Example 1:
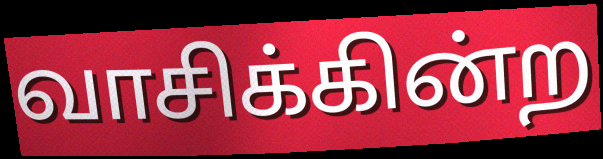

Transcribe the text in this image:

வாசிக்கின்ற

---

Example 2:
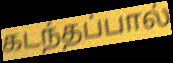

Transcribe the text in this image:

கடந்தப்பால்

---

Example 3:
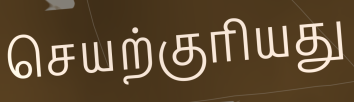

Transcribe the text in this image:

செயற்குரியது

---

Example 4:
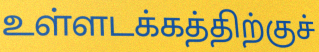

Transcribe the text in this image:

உள்ளடக்கத்திற்குச்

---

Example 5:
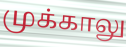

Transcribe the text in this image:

முக்காலு